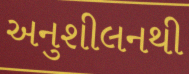
અનુશીલનથી